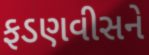
ફડણવીસને